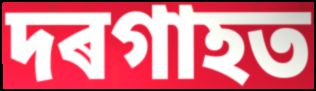
দৰগাহত